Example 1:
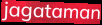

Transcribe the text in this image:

jagataman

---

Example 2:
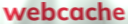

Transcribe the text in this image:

webcache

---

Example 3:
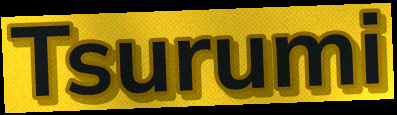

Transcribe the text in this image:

Tsurumi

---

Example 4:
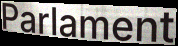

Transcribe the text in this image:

Parlament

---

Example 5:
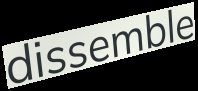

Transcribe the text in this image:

dissemble